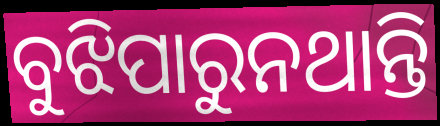
ବୁଝିପାରୁନଥାନ୍ତି